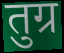
तुग्र